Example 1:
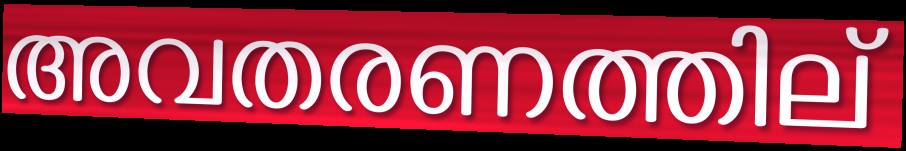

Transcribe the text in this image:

അവതരണത്തില്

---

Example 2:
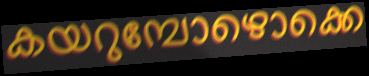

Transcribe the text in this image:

കയറുമ്പോഴൊക്കെ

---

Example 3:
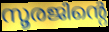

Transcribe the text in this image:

സൂരജിന്റെ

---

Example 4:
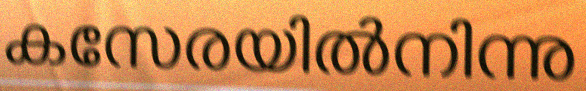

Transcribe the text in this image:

കസേരയിൽനിന്നു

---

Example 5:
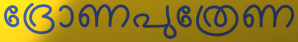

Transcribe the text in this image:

ദ്രോണപുത്രേണ